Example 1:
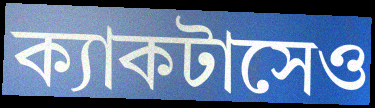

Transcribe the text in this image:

ক্যাকটাসেও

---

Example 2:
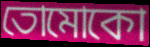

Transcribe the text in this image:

তোমোকো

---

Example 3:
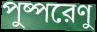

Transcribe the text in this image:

পুষ্পরেণু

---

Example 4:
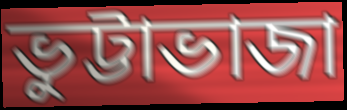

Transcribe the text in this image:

ভুট্টাভাজা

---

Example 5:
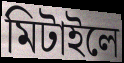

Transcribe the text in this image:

মিটাইলে